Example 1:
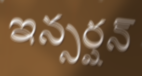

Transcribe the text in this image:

ఇన్సర్షన్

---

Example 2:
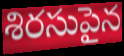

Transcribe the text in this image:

శిరసుపైన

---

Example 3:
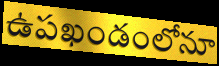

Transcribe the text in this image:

ఉపఖండంలోనూ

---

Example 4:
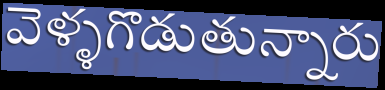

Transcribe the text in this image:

వెళ్ళగొడుతున్నారు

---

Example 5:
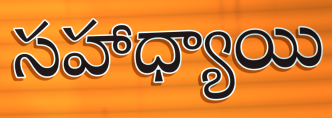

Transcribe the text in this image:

సహాధ్యాయి